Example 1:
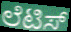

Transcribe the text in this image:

ಲೆಟಿಸ್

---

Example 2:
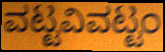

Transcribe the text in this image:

ವಟ್ಟವಿವಟ್ಟಂ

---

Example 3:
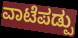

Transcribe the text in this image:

ವಾಟೆಪಡ್ಪು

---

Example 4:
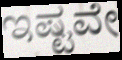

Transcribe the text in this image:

ಇಷ್ಟವೇ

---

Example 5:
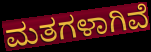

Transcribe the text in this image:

ಮತಗಳಾಗಿವೆ